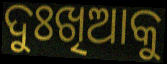
ଦୁଃଖିଆକୁ